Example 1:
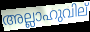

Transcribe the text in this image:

അല്ലാഹുവില്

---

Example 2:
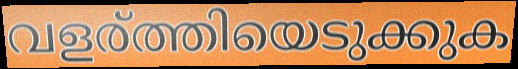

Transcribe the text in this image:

വളര്ത്തിയെടുക്കുക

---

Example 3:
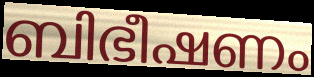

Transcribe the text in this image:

ബിഭീഷണം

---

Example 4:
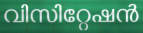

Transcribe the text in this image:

വിസിറ്റേഷൻ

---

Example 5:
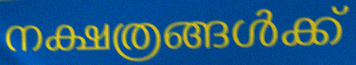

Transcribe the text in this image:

നക്ഷത്രങ്ങൾക്ക്